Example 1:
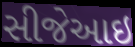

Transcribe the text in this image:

સીજેઆઇ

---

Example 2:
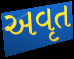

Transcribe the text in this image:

અવૃત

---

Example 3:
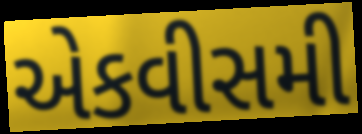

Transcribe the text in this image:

એકવીસમી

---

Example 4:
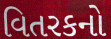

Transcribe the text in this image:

વિતરકનો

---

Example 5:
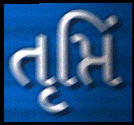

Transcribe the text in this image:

તૃપ્તિં